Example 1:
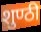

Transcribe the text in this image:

शुण्ठी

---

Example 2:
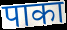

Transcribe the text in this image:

पाका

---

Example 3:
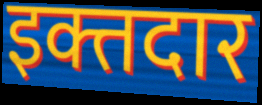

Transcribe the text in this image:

इक्तदार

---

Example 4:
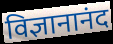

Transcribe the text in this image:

विज्ञानानंद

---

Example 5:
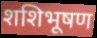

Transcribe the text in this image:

शशिभूषण